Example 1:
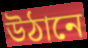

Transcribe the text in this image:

উঠানে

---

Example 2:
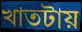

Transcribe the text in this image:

খাতটায়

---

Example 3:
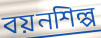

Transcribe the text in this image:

বয়নশিল্প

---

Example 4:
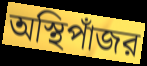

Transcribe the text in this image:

অস্থিপাঁজর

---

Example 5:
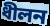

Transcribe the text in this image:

ধীলন